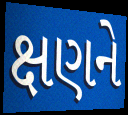
ક્ષણને